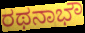
ರಥನಾಭೌ